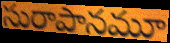
సురాపానమూ